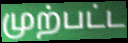
முற்பட்ட